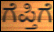
ಗೆಪ್ತಿಗೆ